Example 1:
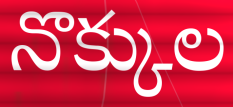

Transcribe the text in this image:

నొక్కుల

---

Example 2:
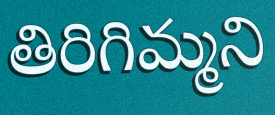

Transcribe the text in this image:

తిరిగిమ్మని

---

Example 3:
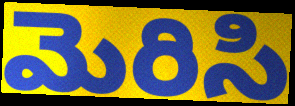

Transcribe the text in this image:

మెరిసి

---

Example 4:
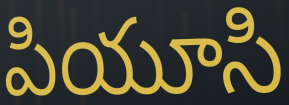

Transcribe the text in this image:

పియూసి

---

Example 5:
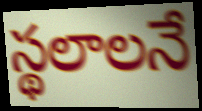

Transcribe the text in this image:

స్థలాలనే